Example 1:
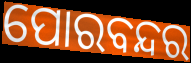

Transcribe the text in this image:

ପୋରବନ୍ଦର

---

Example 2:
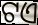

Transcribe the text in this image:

ଟଏ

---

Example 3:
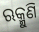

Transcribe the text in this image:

ଋକ୍ମୁଣି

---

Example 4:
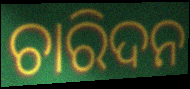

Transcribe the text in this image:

ଚାରିଦନ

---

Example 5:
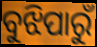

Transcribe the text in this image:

ବୁଝିପାରୁଁ